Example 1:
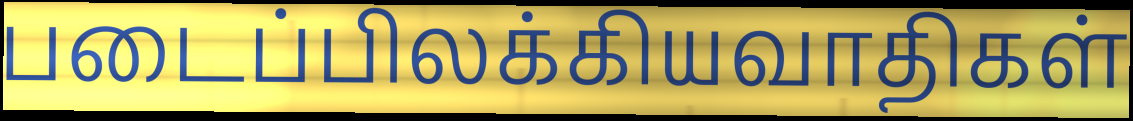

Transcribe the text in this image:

படைப்பிலக்கியவாதிகள்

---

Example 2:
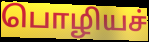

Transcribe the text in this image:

பொழியச்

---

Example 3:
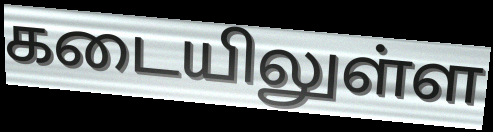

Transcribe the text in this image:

கடையிலுள்ள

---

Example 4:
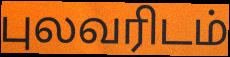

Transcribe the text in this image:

புலவரிடம்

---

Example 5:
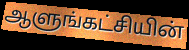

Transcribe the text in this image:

ஆளுங்கட்சியின்